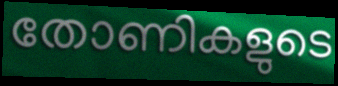
തോണികളുടെ